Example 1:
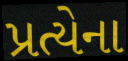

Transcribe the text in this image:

પ્રત્યેના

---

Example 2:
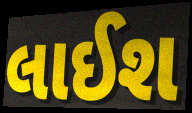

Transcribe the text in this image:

લાઈશ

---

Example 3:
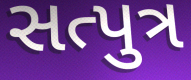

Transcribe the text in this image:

સત્પુત્ર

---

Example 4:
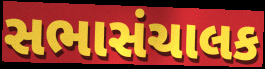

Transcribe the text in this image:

સભાસંચાલક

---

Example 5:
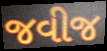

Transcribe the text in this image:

જવીજ